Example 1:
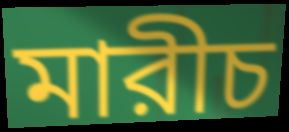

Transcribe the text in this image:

মারীচ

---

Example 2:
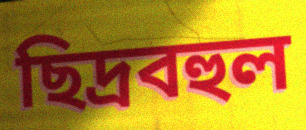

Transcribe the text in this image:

ছিদ্রবহুল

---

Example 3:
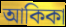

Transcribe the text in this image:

আকিকা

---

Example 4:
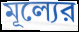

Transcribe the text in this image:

মূল্যের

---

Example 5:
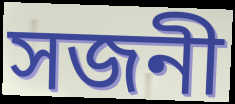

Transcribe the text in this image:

সজনী